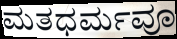
ಮತಧರ್ಮವೂ